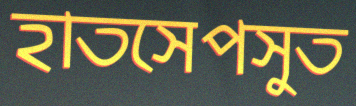
হাতসেপসুত